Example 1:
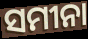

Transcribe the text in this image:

ସମୀନା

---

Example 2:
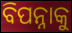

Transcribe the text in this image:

ବିପନ୍ନାକୁ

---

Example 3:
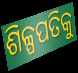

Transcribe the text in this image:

ଶିଳ୍ପପତିକୁ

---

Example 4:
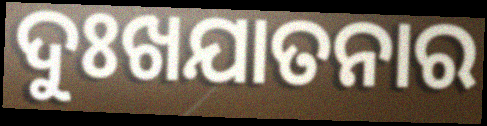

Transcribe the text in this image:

ଦୁଃଖଯାତନାର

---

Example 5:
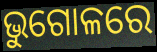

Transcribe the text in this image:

ଭୁଗୋଳରେ